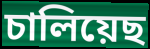
চালিয়েছ